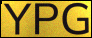
YPG